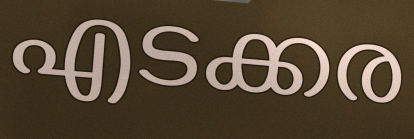
എടക്കര